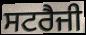
ਸਟਰੈਜੀ